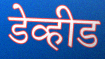
डेव्हीड